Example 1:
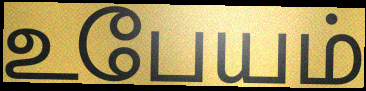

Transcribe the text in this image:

உபேயம்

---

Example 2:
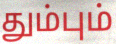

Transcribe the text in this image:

தும்பும்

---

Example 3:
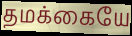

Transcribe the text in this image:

தமக்கையே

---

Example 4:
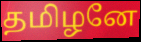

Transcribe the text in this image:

தமிழனே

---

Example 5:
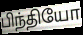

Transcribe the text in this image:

பிந்தியோ